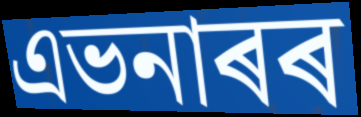
এভনাৰৰ